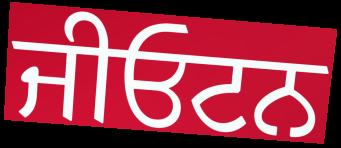
ਜੀਓਟਨ